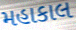
મહાકાલ